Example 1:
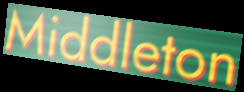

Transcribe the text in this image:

Middleton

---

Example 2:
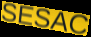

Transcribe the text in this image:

SESAC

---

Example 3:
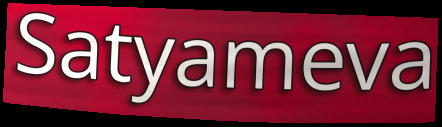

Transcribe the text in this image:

Satyameva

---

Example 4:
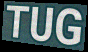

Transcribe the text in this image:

TUG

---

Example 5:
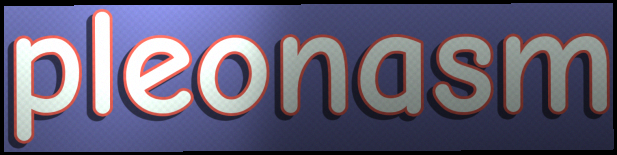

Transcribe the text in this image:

pleonasm